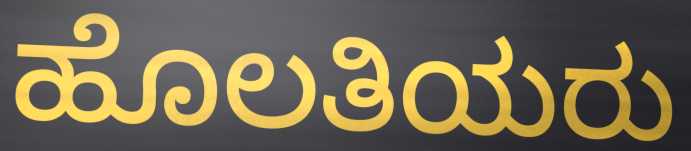
ಹೊಲತಿಯರು